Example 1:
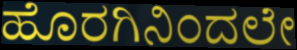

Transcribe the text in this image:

ಹೊರಗಿನಿಂದಲೇ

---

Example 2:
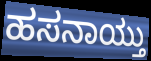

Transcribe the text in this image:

ಹಸನಾಯ್ತು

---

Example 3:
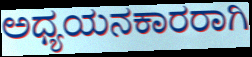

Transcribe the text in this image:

ಅಧ್ಯಯನಕಾರರಾಗಿ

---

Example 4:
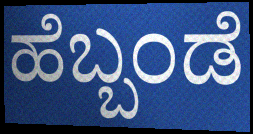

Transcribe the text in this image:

ಹೆಬ್ಬಂಡೆ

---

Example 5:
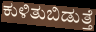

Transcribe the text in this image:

ಕುಳಿತುಬಿಡುತ್ತೆ